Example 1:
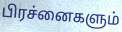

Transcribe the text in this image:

பிரச்னைகளும்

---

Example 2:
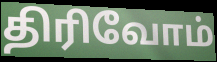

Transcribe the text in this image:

திரிவோம்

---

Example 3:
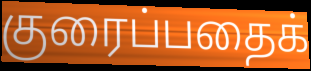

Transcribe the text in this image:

குரைப்பதைக்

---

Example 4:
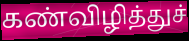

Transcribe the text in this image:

கண்விழித்துச்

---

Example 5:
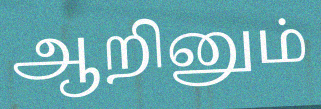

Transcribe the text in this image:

ஆறினும்